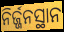
ନିର୍ଜ୍ଜନସ୍ଥାନ